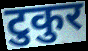
टुकुर